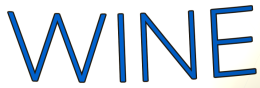
WINE